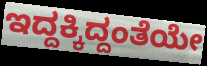
ಇದ್ದಕ್ಕಿದ್ದಂತೆಯೇ